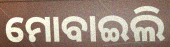
ମୋବାଇଲି